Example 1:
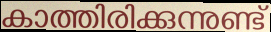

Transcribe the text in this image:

കാത്തിരിക്കുന്നുണ്ട്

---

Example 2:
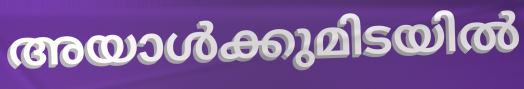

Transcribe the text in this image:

അയാൾക്കുമിടയിൽ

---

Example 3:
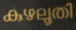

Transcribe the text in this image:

കുഴലൂതി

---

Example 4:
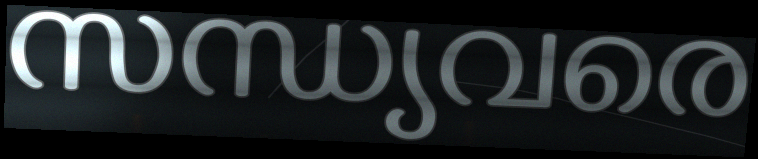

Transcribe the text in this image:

സന്ധ്യവരെ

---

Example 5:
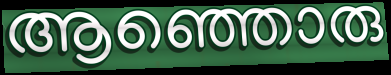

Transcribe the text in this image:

ആഞ്ഞൊരു